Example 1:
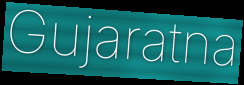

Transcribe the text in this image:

Gujaratna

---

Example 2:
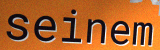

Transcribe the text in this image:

seinem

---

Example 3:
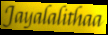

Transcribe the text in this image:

Jayalalithaa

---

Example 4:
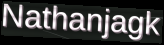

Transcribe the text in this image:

Nathanjagk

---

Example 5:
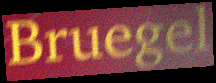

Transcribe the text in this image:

Bruegel